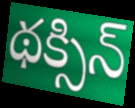
థక్సిన్